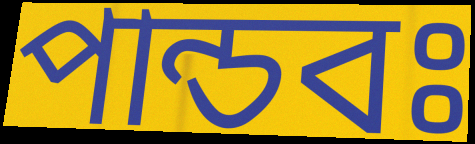
পান্ডবঃ